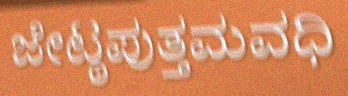
ಜೇಟ್ಠಪುತ್ತಮವಧಿ